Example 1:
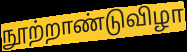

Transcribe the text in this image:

நூற்றாண்டுவிழா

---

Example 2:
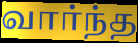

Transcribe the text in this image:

வார்ந்த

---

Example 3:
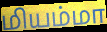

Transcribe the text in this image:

மியம்மா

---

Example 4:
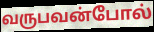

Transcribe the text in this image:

வருபவன்போல்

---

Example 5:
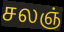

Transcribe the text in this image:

சலஞ்